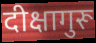
दीक्षागुरू